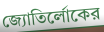
জ্যোতির্লোকের